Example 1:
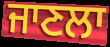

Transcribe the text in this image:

ਜਾਣਲਾ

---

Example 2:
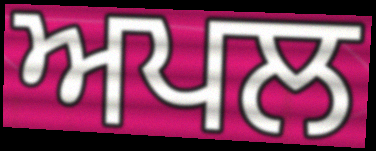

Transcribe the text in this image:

ਅਪਲ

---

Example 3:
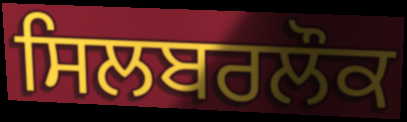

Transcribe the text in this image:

ਸਿਲਬਰਲੌਕ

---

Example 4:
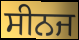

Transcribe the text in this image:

ਸੀਨਜ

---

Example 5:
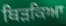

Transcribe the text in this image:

ਥਿੜਕਿਆ